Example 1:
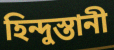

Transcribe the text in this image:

হিন্দুস্তানী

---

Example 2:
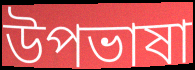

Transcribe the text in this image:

উপভাষা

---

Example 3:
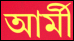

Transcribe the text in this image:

আৰ্মী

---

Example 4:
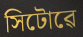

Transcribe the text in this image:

সিটোৱে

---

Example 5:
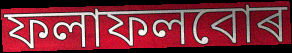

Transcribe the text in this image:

ফলাফলবোৰ